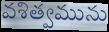
వశిత్వమును